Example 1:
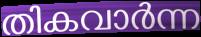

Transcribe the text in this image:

തികവാർന്ന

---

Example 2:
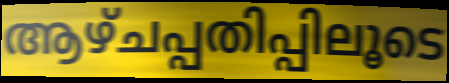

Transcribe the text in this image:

ആഴ്ചപ്പതിപ്പിലൂടെ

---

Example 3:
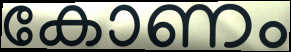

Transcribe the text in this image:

കോണം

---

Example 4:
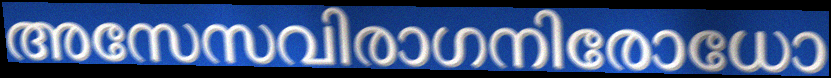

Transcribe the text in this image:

അസേസവിരാഗനിരോധോ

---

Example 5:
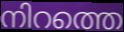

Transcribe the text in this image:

നിറത്തെ